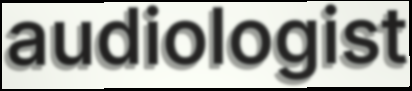
audiologist